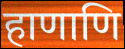
हाणाणि